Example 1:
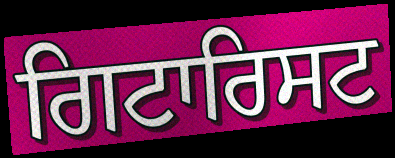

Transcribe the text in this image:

ਗਿਟਾਰਿਸਟ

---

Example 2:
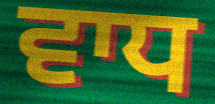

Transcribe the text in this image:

ਵਾਧ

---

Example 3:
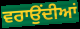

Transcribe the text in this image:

ਵਰਾਉਂਦੀਆਂ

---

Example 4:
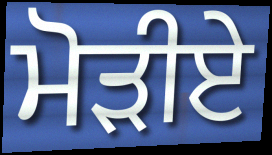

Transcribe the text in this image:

ਮੋੜੀਏ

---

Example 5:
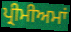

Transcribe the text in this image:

ਪ੍ਰੀਮੀਅਮਾਂ